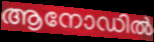
ആനോഡിൽ